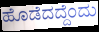
ಹೊಡೆದದ್ದೆಂದು